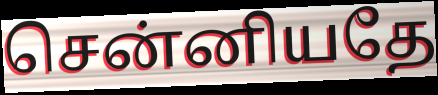
சென்னியதே